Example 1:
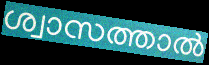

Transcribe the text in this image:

ശ്വാസത്താൽ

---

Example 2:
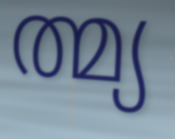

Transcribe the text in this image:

ത്മ്യ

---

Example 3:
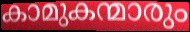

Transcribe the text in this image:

കാമുകന്മാരും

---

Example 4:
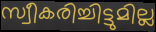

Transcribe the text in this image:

സ്വീകരിച്ചിട്ടുമില്ല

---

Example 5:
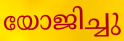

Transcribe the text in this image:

യോജിച്ചു